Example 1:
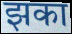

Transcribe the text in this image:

झका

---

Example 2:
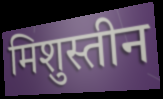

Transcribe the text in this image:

मिशुस्तीन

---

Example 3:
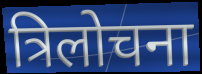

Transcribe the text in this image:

त्रिलोचना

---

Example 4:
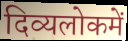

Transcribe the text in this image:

दिव्यलोकमें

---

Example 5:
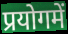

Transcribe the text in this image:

प्रयोगमें